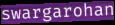
swargarohan